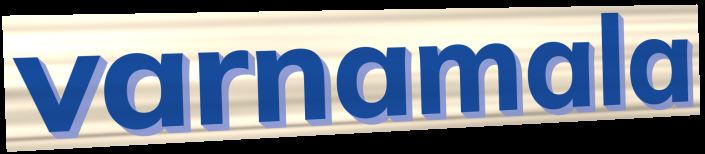
varnamala